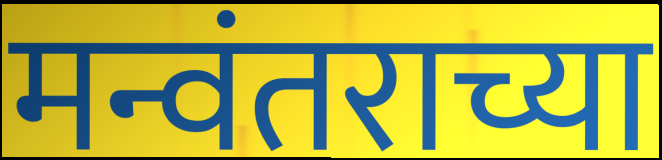
मन्वंतराच्या